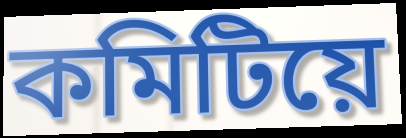
কমিটিয়ে